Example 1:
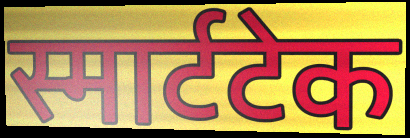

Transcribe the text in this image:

स्मार्टटेक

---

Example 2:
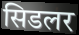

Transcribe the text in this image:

सिडलर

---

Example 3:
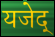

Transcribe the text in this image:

यजेद्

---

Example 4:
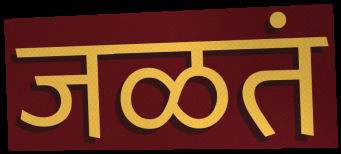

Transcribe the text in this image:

जळतं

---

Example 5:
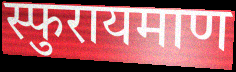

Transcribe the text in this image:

स्फुरायमाण